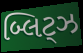
બ્લિટ્ઝ